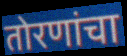
तोरणांचा